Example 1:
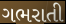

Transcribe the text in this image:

ગભરાતી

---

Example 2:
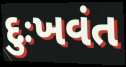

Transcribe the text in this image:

દુઃખવંત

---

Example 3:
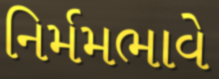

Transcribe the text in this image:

નિર્મમભાવે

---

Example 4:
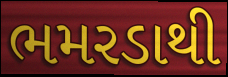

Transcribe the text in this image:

ભમરડાથી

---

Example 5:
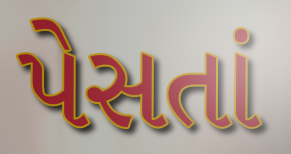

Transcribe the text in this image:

પેસતાં